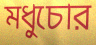
মধুচোর